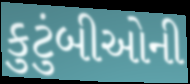
કુટુંબીઓની